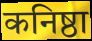
कनिष्ठा